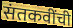
संतकवींची